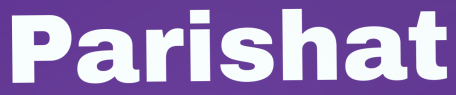
Parishat